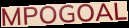
MPOGOAL